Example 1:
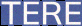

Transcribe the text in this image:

TERE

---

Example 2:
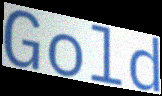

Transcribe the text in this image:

Gold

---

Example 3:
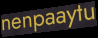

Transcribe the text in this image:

nenpaaytu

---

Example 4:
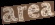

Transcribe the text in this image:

area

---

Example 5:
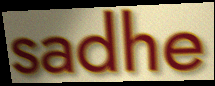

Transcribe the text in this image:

sadhe